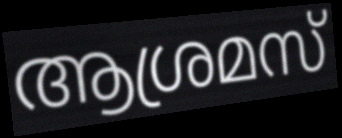
ആശ്രമസ്